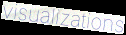
visualizations